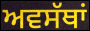
ਅਵਸੱਥਾਂ